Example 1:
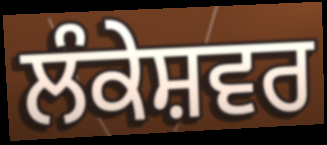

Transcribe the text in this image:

ਲੰਕੇਸ਼ਵਰ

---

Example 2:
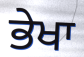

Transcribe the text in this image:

ਭੇਖਾ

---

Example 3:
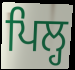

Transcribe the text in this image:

ਪਿਲ੍ਹ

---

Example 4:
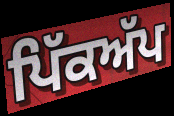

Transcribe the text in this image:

ਪਿੱਕਅੱਪ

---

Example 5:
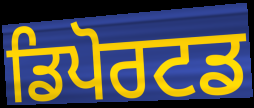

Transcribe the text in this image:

ਡਿਪੋਰਟਡ